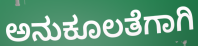
ಅನುಕೂಲತೆಗಾಗಿ